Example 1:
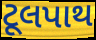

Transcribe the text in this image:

ટૂલપાથ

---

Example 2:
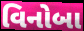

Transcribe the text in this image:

વિનોબા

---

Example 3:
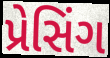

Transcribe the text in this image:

પ્રેસિંગ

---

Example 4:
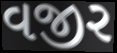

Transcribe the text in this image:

વજીર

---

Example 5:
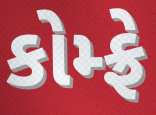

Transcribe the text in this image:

કોમ્ફ્રે